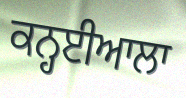
ਕਨ੍ਹਈਆਲਾ